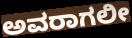
ಅವರಾಗಲೀ